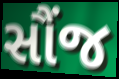
સૌંજ